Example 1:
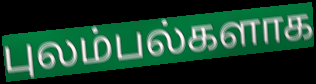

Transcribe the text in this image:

புலம்பல்களாக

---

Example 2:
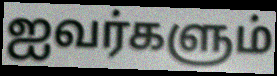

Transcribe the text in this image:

ஐவர்களும்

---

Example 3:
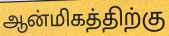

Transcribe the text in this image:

ஆன்மிகத்திற்கு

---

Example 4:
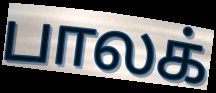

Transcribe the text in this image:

பாலக்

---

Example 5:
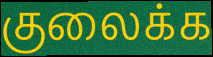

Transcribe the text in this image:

குலைக்க